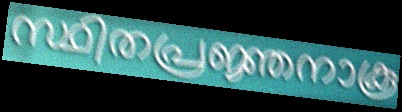
സ്ഥിതപ്രജ്ഞനാകൂ